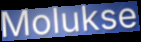
Molukse